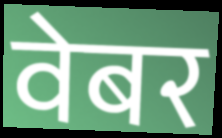
वेबर